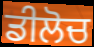
ਡੀਲੋਚ